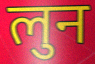
लुन